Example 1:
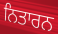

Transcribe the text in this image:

ਨਿਤਾਰਨ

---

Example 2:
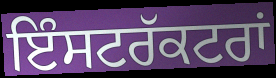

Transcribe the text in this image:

ਇੰਸਟਰੱਕਟਰਾਂ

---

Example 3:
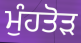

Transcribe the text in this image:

ਮੁੰਹਤੋੜ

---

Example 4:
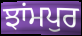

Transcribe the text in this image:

ਝਾਂਮਪੁਰ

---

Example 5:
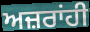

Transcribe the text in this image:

ਅਜ਼ਰਾਂਹੀ